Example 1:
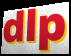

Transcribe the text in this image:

dlp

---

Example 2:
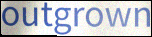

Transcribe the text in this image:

outgrown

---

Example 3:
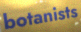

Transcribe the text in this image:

botanists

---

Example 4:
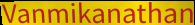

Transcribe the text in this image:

Vanmikanathan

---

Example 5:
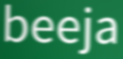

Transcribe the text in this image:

beeja